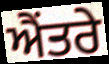
ਐਂਤਰੇ